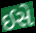
ઈસે